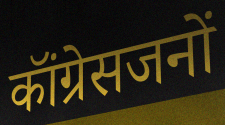
कॉंग्रेसजनों